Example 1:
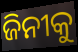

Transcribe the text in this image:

ଜିନୀକୁ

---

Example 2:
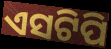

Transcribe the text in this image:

ଏସଟିପି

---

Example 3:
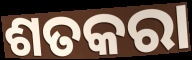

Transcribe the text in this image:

ଶତକରା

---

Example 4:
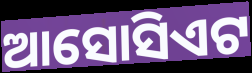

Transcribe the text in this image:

ଆସୋସିଏଟ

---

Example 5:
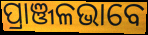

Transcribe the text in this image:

ପ୍ରାଞ୍ଜଳଭାବେ